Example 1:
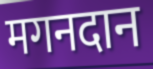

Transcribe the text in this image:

मगनदान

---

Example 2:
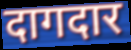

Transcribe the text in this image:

दागदार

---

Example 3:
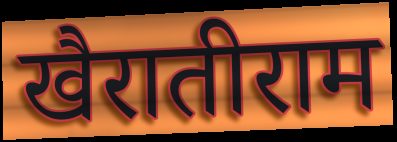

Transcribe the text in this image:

खैरातीराम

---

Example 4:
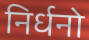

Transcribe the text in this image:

निर्धनो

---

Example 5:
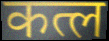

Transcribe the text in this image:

कत्ल